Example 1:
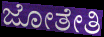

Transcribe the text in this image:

ಜೋತೇತಿ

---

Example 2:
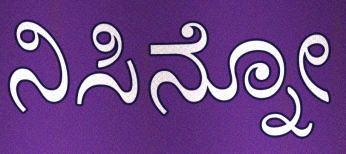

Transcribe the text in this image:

ನಿಸಿನ್ನೋ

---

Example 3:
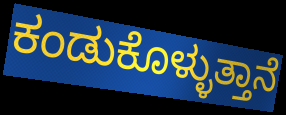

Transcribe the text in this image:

ಕಂಡುಕೊಳ್ಳುತ್ತಾನೆ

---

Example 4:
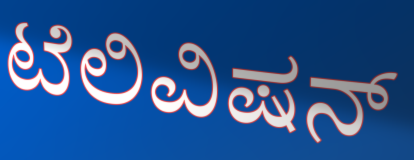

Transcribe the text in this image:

ಟೆಲಿವಿಷನ್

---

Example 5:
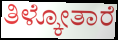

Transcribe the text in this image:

ತಿಳ್ಕೋತಾರೆ